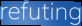
refuting